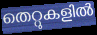
തെറ്റുകളിൽ